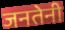
जनतेनी